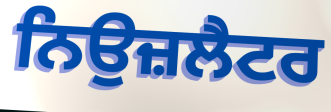
ਨਿਉਜ਼ਲੈਟਰ